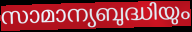
സാമാന്യബുദ്ധിയും